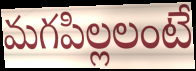
మగపిల్లలంటే